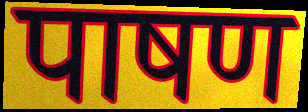
पाषण